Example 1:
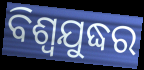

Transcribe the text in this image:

ବିଶ୍ୱଯୁଦ୍ଧର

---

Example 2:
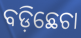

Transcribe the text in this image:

ବଡ଼ିଛେଚା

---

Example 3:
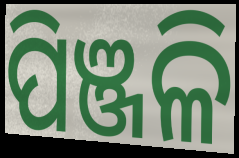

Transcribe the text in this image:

ପିଞ୍ଜଳି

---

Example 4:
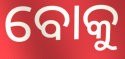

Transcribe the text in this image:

ବୋକୁ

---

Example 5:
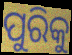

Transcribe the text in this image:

ପୁରିକୁ